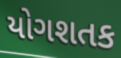
યોગશતક